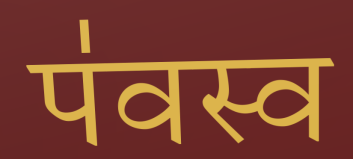
प॑वस्व